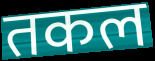
तकल